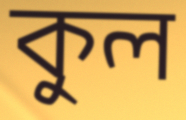
কুল